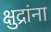
क्षुद्रांना